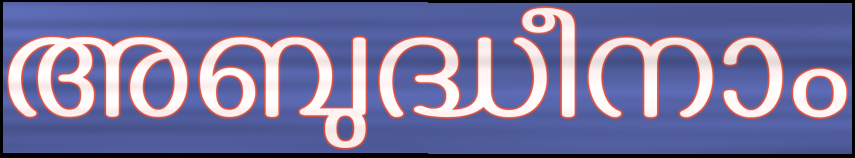
അബുദ്ധീനാം